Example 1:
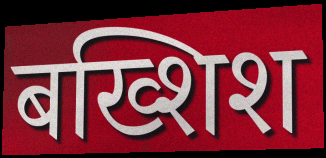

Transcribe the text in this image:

बख्शिश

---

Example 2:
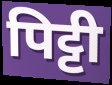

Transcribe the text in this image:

पिट्टी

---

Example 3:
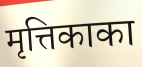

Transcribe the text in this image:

मृत्तिकाका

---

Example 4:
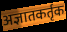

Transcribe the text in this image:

अज्ञातकर्तृक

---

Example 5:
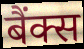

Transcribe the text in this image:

बैंक्स